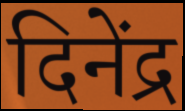
दिनेंद्र